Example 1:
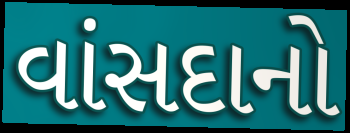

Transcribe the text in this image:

વાંસદાનો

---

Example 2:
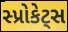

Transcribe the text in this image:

સ્પ્રોકેટ્સ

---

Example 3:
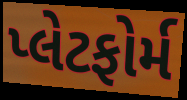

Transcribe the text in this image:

પ્લેટફોર્મ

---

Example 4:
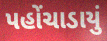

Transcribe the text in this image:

પહોંચાડાયું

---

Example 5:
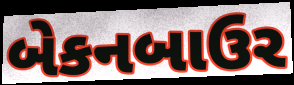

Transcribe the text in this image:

બેકનબાઉર